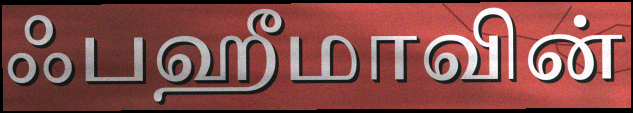
ஃபஹீமாவின்